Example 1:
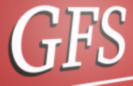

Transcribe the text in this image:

GFS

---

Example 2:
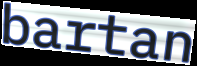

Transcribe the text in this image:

bartan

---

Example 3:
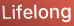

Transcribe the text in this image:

Lifelong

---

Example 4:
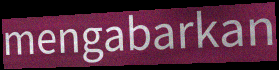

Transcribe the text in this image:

mengabarkan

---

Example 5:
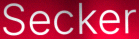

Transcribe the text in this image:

Secker